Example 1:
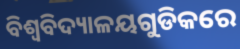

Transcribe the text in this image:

ବିଶ୍ଵବିଦ୍ୟାଳୟଗୁଡିକରେ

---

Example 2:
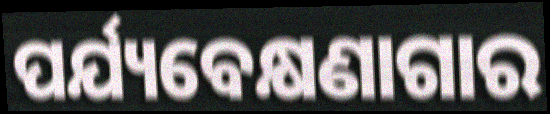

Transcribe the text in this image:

ପର୍ଯ୍ୟବେକ୍ଷଣାଗାର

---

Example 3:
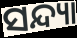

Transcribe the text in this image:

ସନ୍ଦ୍ୟା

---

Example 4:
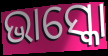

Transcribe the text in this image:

ଭାସ୍କୋ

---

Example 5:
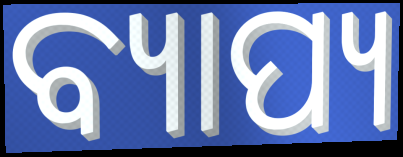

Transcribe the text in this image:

ବ୍ଯାପ୍ୟ